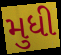
મુધી